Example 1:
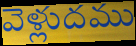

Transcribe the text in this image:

వెళ్లుదము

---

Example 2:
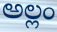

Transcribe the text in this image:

అల్లం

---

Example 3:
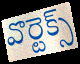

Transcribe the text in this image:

వొర్టెక్స్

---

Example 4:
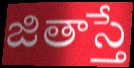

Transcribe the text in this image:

జితాస్తే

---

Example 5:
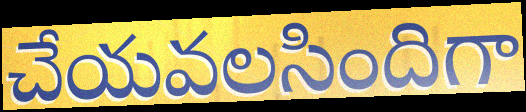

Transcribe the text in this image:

చేయవలసిందిగా